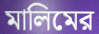
মালিমের